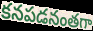
కనపడనంతగా